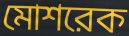
মোশরেক